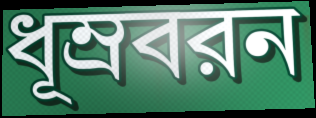
ধূম্রবরন